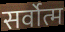
सर्वोत्म